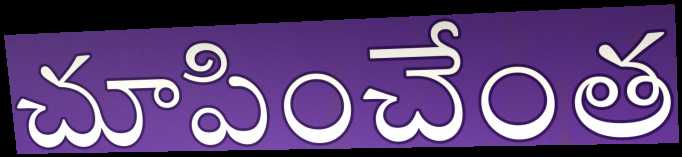
చూపించేంత